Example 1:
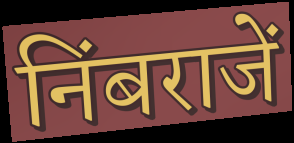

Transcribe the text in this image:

निंबराजें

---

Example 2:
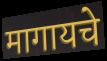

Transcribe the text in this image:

मागायचे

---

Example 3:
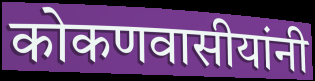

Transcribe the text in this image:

कोकणवासीयांनी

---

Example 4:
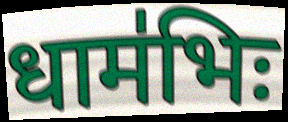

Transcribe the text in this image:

धाम॑भिः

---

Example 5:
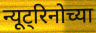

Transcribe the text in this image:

न्यूट्रिनोच्या